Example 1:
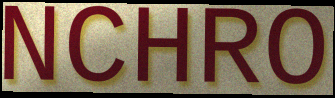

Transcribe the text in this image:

NCHRO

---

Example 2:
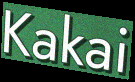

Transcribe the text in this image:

Kakai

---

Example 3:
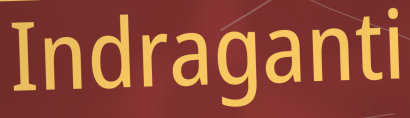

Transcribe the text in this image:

Indraganti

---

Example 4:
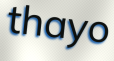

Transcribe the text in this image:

thayo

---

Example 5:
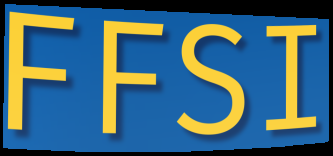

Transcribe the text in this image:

FFSI